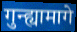
गुन्ह्यामागे